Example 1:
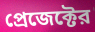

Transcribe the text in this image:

প্রেজেক্টের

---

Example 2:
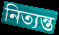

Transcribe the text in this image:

নিত্যন্ত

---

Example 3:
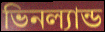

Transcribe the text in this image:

ভিনল্যান্ড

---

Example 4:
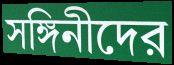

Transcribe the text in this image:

সঙ্গিনীদের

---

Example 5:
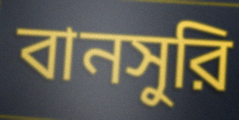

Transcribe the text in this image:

বানসুরি